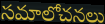
సమాలోచనలు